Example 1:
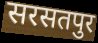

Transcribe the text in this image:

सरसतपुर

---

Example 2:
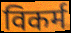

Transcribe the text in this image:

विकर्म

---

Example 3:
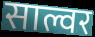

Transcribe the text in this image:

साल्वर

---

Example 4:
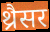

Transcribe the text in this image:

थ्रैसर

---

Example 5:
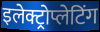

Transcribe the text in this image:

इलेक्ट्रोप्लेटिंग